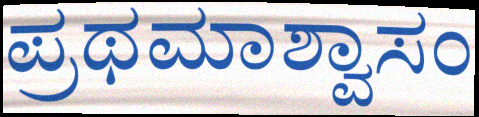
ಪ್ರಥಮಾಶ್ವಾಸಂ